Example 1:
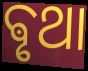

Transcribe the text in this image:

ଵୃଥା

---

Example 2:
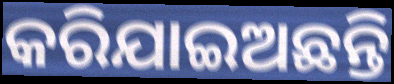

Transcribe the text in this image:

କରିଯାଇଅଛନ୍ତି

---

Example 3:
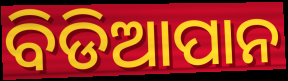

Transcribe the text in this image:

ବିଡିଆପାନ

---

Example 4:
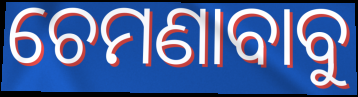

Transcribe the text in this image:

ଚେମଣାବାବୁ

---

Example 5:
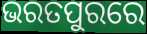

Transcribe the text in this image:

ଭରତପୁରରେ